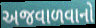
અજવાળવાનો